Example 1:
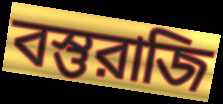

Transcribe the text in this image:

বস্তুরাজি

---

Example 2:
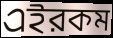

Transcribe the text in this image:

এইরকম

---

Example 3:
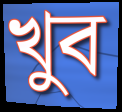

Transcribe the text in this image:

খুব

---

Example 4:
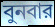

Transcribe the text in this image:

বুনবার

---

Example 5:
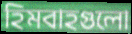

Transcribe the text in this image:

হিমবাহগুলো